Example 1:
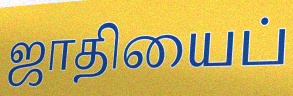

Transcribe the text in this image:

ஜாதியைப்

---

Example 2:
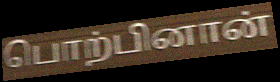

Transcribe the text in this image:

பொற்பினான்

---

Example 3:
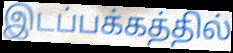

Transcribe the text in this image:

இடப்பக்கத்தில்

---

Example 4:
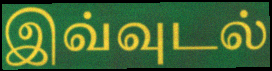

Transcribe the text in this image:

இவ்வுடல்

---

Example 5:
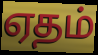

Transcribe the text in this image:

ஏதம்